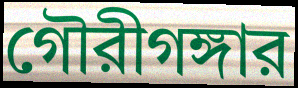
গৌরীগঙ্গার